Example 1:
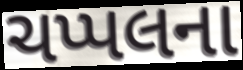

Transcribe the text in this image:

ચપ્પલના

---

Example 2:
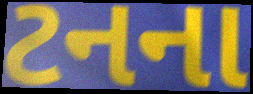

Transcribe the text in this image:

ટનના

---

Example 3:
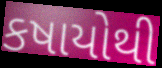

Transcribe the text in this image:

કષાયોથી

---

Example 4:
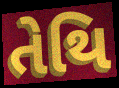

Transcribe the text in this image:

તેથિ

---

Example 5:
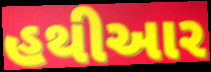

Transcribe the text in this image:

હથીઆર